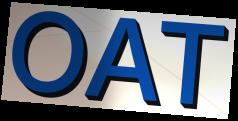
OAT